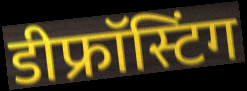
डीफ्रॉस्टिंग